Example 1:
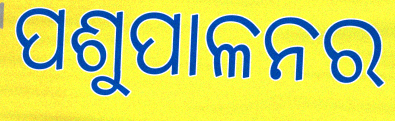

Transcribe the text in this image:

ପଶୁପାଳନର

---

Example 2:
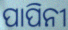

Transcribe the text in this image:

ପାପିନୀ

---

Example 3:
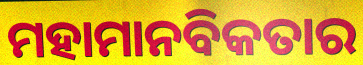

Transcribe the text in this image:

ମହାମାନବିକତାର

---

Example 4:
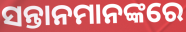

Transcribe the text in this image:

ସନ୍ତାନମାନଙ୍କରେ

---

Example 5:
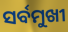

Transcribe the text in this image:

ସର୍ବମୁଖୀ